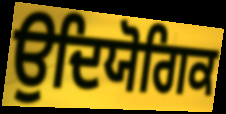
ਉਦਿਯੋਗਿਕ